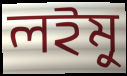
লইমু